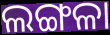
ଲଙ୍ଗଳା